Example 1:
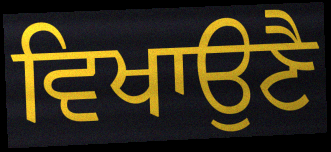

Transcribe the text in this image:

ਵਿਖਾਉਣੈ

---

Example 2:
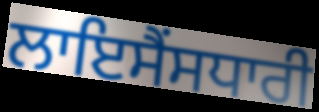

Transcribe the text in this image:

ਲਾਇਸੈਂਸਧਾਰੀ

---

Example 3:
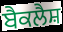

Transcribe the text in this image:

ਬੈਕਲੈਸ਼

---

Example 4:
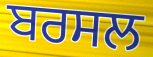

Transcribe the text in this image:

ਬਰਸਲ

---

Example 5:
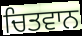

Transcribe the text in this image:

ਚਿਤਵਾਨ